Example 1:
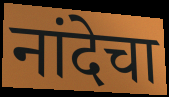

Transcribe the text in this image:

नांदेचा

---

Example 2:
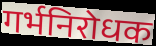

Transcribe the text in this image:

गर्भनिरोधक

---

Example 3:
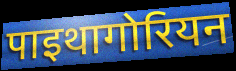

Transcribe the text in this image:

पाइथागोरियन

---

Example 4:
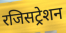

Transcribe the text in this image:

रजिसट्रेशन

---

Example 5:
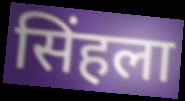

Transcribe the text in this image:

सिंहला